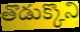
తొడుక్కొని